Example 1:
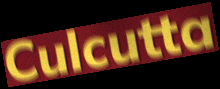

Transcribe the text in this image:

Culcutta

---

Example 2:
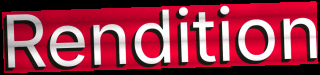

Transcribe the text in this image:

Rendition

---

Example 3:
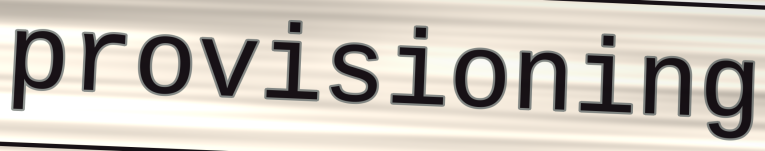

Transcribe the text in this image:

provisioning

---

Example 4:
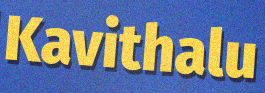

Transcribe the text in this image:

Kavithalu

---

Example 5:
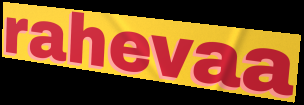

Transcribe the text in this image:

rahevaa